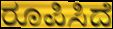
ರೂಪಿಸಿದೆ